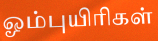
ஓம்புயிரிகள்